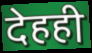
देहही